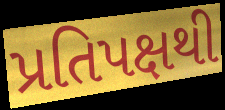
પ્રતિપક્ષથી